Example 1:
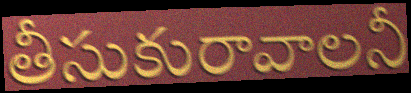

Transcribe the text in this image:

తీసుకురావాలనీ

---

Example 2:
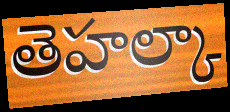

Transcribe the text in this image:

తెహల్కా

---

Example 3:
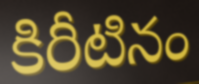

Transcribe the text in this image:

కిరీటినం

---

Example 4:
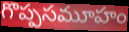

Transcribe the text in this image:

గొప్పసమూహం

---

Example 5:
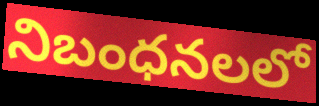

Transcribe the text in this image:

నిబంధనలలో